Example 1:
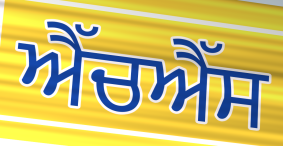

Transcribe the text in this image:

ਐੱਚਐੱਸ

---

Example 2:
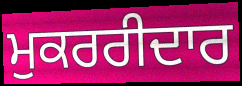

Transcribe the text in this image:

ਮੁਕਰਰੀਦਾਰ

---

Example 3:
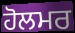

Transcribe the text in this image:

ਹੋਲਮਰ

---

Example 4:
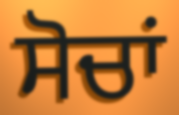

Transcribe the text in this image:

ਸੋਚਾਂ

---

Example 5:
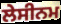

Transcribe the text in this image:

ਲੇਸੀਨਮ